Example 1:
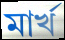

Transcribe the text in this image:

মার্খ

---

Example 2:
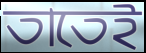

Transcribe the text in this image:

তাতেই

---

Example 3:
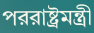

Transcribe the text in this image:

পররাষ্ট্রমন্ত্রী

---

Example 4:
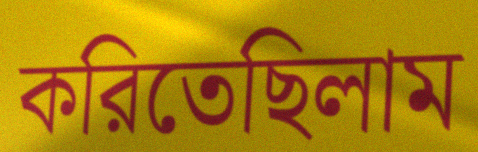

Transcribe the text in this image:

করিতেছিলাম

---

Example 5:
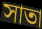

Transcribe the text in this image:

সাতা